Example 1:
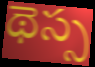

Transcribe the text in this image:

థెస్స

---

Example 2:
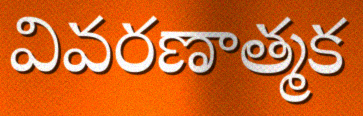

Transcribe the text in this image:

వివరణాత్మక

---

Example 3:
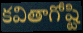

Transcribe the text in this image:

కవితాగోష్టి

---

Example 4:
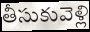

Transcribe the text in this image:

తీసుకువెళ్లి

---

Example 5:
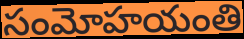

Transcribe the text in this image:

సంమోహయంతి